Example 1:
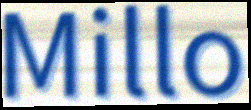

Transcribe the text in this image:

Millo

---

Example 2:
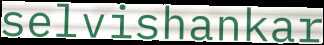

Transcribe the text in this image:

selvishankar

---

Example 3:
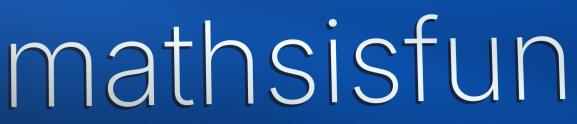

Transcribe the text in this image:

mathsisfun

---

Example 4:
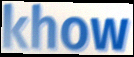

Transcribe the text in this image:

khow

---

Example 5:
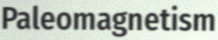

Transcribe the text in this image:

Paleomagnetism